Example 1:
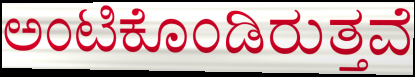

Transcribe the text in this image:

ಅಂಟಿಕೊಂಡಿರುತ್ತವೆ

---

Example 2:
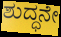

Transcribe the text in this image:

ಶುದ್ಧನೇ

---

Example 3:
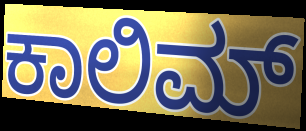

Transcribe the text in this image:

ಕಾಲಿಮ್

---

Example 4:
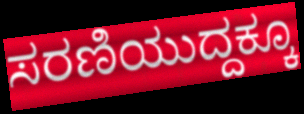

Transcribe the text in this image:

ಸರಣಿಯುದ್ದಕ್ಕೂ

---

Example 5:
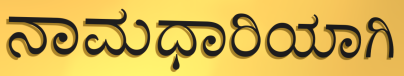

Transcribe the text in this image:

ನಾಮಧಾರಿಯಾಗಿ